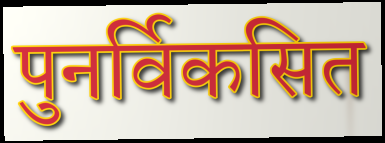
पुनर्विकसित